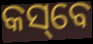
କସ୍‌ବେ